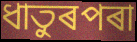
ধাতুৰপৰা